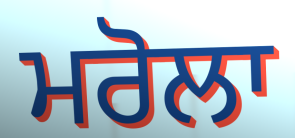
ਮਰੋਲਾ